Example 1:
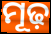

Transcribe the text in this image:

ମୂଢ଼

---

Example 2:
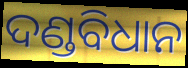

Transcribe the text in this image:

ଦଣ୍ଡବିଧାନ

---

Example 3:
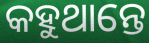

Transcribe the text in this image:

କହୁଥାନ୍ତେ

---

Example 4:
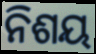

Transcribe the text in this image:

ନିଶୟ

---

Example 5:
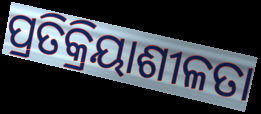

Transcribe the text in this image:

ପ୍ରତିକ୍ରିୟାଶୀଳତା